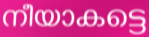
നീയാകട്ടെ